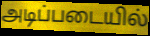
அடிப்படையில்